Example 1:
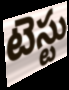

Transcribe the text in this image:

టెస్టు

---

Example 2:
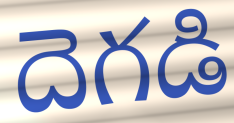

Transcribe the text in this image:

దెగడి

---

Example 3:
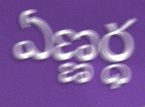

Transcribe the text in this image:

ఏణ్ణర్ధ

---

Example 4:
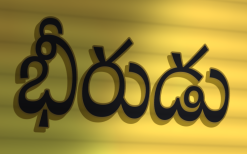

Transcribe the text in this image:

భీరుడు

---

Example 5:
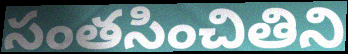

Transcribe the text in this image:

సంతసించితిని